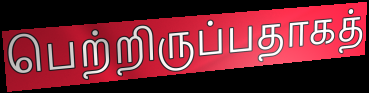
பெற்றிருப்பதாகத்